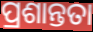
ପ୍ରଶାନ୍ତତା